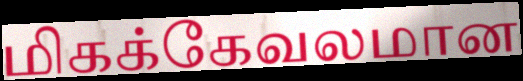
மிகக்கேவலமான